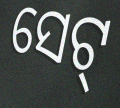
ସେଟ୍